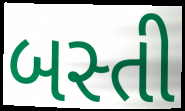
બસ્તી